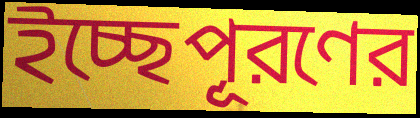
ইচ্ছেপূরণের